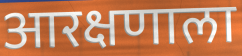
आरक्षणाला